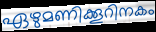
ഏഴുമണിക്കൂറിനകം